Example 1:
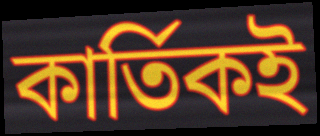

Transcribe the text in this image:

কার্তিকই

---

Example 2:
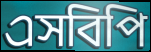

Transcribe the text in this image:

এসবিপি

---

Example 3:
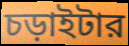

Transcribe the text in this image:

চড়াইটার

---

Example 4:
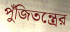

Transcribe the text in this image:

পুঁজিতন্ত্রের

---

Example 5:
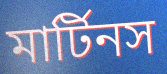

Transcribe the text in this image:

মার্টিনস